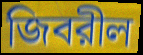
জিবরীল